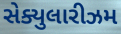
સેક્યુલારીઝમ